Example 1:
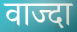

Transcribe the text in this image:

वाज्दा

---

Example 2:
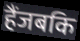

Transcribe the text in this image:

हैंजबकि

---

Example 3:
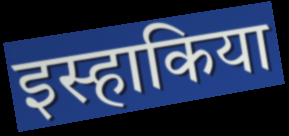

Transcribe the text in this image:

इस्हाकिया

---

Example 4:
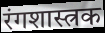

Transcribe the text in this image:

रंगशास्त्रक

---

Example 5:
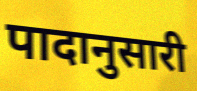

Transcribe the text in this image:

पादानुसारी